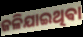
ଜଳିଯାଇଥିଵା